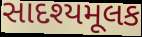
સાદશ્યમૂલક